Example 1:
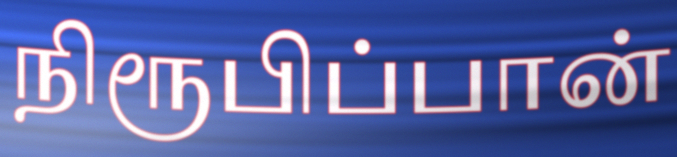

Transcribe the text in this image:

நிரூபிப்பான்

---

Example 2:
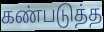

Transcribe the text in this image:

கண்படுத்த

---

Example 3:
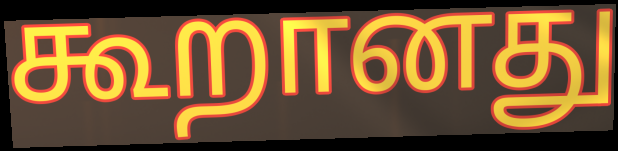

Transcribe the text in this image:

கூறானது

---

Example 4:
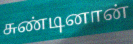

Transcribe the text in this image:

சுண்டினான்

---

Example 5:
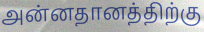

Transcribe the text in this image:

அன்னதானத்திற்கு